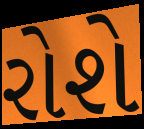
રોશે